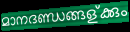
മാനദണ്ഡങ്ങള്ക്കും